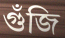
গুঁজি